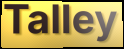
Talley